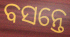
ବସନ୍ତେ